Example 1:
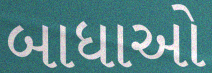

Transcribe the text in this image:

બાધાઓ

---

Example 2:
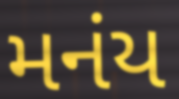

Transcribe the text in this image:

મનંય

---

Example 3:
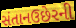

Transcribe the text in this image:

સંતાનઉછેરની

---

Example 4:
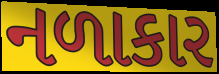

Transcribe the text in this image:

નળાકાર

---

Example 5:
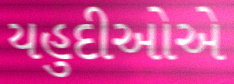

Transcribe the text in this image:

યહુદીઓએ